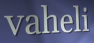
vaheli